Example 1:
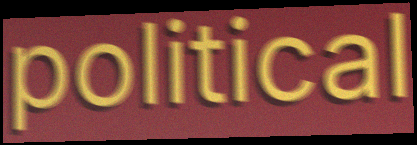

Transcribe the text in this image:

political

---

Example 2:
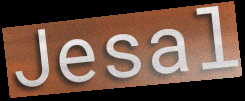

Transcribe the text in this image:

Jesal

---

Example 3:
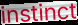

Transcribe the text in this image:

instinct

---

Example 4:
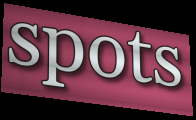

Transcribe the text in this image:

spots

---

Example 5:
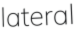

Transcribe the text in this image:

lateral